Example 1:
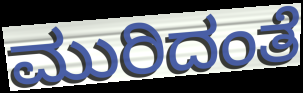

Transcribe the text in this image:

ಮುರಿದಂತೆ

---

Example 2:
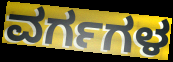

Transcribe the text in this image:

ವರ್ಗಗಳ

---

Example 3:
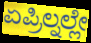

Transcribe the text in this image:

ಏಪ್ರಿಲ್ನಲ್ಲೇ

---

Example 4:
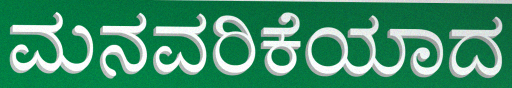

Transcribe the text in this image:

ಮನವರಿಕೆಯಾದ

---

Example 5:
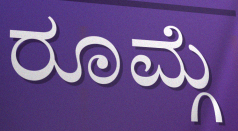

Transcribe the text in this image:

ರೂಮ್ಗೆ